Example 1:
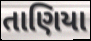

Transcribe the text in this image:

તાણિયા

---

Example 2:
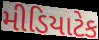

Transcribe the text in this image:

મીડિયાટેક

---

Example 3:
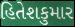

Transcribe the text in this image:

હિતેશકુમાર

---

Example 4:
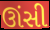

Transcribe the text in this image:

ઊંસી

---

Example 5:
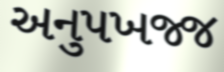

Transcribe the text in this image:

અનુપખજ્જ